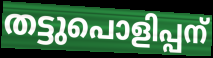
തട്ടുപൊളിപ്പന്